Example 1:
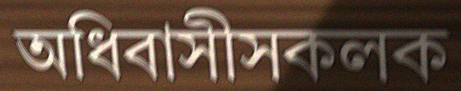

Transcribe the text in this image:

অধিবাসীসকলক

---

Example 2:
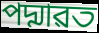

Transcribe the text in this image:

পদ্মাৱত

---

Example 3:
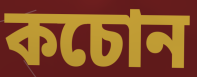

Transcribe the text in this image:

কচোন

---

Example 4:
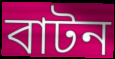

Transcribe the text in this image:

বাটন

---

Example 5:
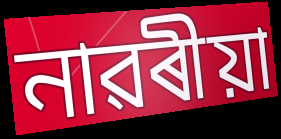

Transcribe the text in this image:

নাৱৰীয়া